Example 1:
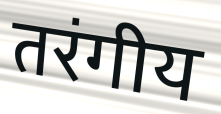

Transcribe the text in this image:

तरंगीय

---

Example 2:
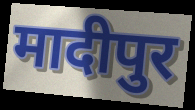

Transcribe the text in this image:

मादीपुर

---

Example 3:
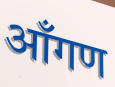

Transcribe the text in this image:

आँगण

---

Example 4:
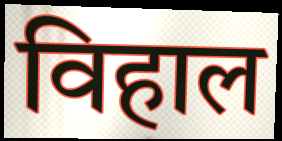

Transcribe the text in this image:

विहाल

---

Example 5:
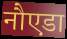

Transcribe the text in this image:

नौएडा